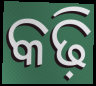
କଢ଼ି